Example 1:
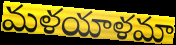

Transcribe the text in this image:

మళయాళమా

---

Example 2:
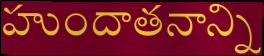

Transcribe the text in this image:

హుందాతనాన్ని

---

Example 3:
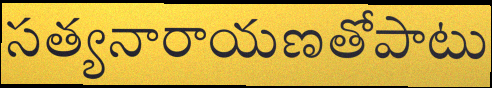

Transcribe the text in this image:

సత్యనారాయణతోపాటు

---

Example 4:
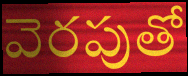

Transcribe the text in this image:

వెరపుతో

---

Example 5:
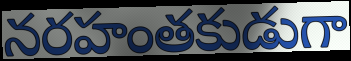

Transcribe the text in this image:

నరహంతకుడుగా